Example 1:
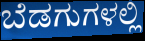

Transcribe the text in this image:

ಬೆಡಗುಗಳಲ್ಲಿ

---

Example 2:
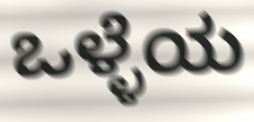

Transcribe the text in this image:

ಒಳ್ಳೆಯ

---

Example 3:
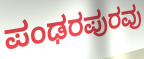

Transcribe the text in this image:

ಪಂಢರಪುರವು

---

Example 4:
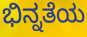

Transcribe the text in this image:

ಭಿನ್ನತೆಯ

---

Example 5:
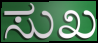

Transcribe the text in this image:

ಸುಖ